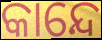
କାନ୍ଦେ